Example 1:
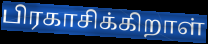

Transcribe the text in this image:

பிரகாசிக்கிறாள்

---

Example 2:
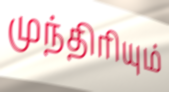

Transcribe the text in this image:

முந்திரியும்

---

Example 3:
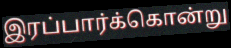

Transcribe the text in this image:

இரப்பார்க்கொன்று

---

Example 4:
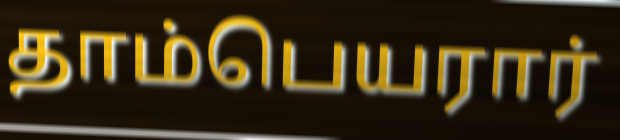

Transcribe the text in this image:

தாம்பெயரார்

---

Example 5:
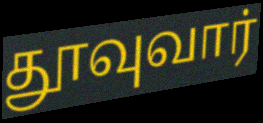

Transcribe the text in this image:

தூவுவார்